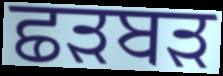
ਛੜਬੜ